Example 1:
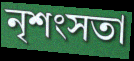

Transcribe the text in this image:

নৃশংসতা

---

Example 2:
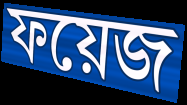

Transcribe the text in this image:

ফয়েজ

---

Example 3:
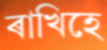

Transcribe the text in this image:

ৰাখিহে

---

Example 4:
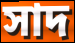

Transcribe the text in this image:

সাদ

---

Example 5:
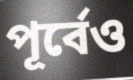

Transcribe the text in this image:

পূৰ্বেও